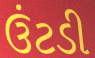
ઉંટડી